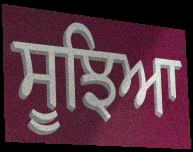
ਸੂਝਿਆ